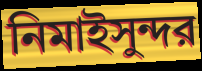
নিমাইসুন্দর